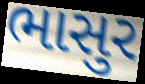
ભાસુર